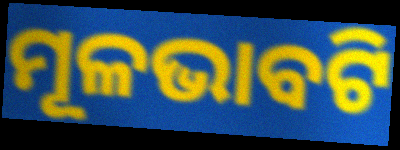
ମୂଳଭାବଟି